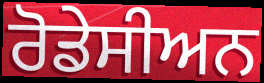
ਰੋਡੇਸੀਅਨ